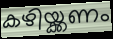
കഴിയ്ക്കണം